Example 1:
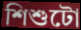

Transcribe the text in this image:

শিশুটো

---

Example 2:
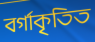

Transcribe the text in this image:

বৰ্গাকৃতিত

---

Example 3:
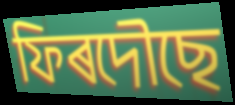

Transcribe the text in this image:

ফিৰদৌছে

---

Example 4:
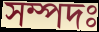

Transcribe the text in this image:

সম্পদঃ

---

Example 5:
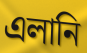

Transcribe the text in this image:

এলানি